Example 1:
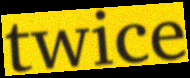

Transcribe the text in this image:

twice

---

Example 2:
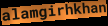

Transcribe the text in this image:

alamgirhkhan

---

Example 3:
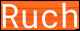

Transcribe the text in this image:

Ruch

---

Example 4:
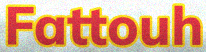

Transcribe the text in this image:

Fattouh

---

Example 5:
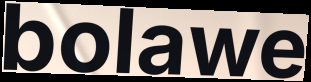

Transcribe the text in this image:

bolawe